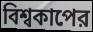
বিশ্বকাপের